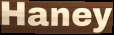
Haney